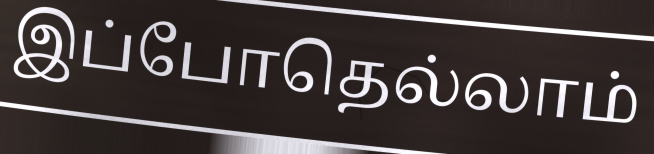
இப்போதெல்லாம்